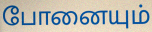
போனையும்